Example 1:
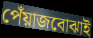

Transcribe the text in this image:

পেঁয়াজবোঝাই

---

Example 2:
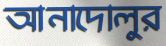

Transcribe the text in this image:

আনাদোলুর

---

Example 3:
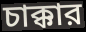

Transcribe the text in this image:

চাক্কার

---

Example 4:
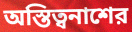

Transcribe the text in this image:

অস্তিত্বনাশের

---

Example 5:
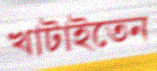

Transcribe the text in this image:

খাটাইতেন